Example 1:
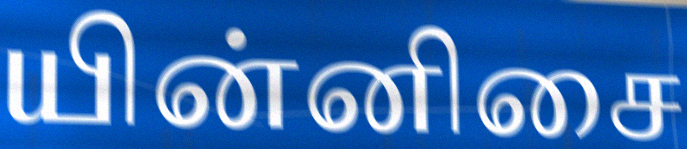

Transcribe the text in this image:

யின்னிசை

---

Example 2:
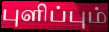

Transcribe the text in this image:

புளிப்பும்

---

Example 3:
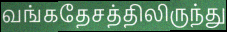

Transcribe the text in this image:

வங்கதேசத்திலிருந்து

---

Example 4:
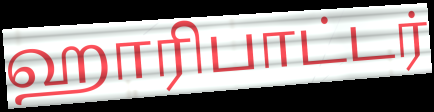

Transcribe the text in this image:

ஹாரிபாட்டர்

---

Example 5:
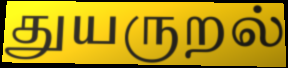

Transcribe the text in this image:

துயருறல்